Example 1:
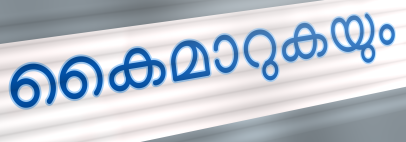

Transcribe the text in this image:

കൈമാറുകയും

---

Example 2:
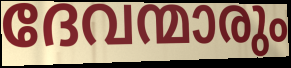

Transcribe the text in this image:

ദേവന്മാരും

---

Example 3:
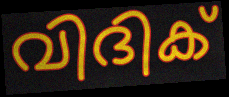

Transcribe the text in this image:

വിദിക്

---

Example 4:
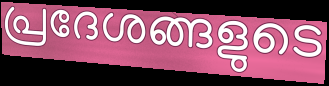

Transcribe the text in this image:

പ്രദേശങ്ങളുടെ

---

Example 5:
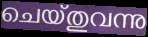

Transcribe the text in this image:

ചെയ്തുവന്നു